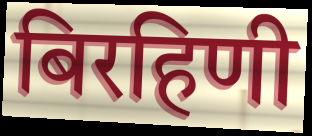
बिरहिणी